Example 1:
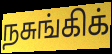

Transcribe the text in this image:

நசுங்கிக்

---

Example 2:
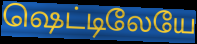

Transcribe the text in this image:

ஷெட்டிலேயே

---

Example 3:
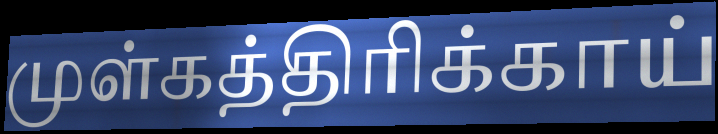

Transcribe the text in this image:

முள்கத்திரிக்காய்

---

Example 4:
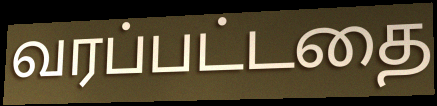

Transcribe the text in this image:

வரப்பட்டதை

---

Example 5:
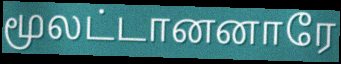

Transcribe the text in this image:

மூலட்டானனாரே